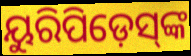
ୟୁରିପିଡ଼େସ୍‌ଙ୍କ